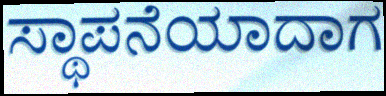
ಸ್ಥಾಪನೆಯಾದಾಗ